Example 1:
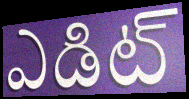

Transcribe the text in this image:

ఎడిట్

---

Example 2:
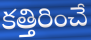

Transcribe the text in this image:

కత్తిరించే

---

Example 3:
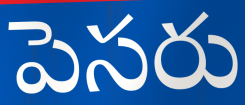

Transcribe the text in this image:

పెసరు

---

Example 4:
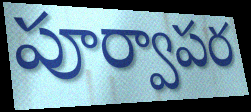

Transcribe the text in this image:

పూర్వాపర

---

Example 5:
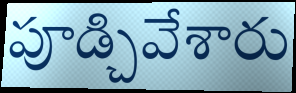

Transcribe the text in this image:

పూడ్చివేశారు